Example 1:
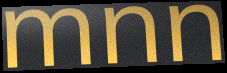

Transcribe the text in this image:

mnn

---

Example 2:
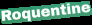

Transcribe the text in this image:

Roquentine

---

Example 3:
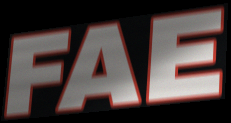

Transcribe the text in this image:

FAE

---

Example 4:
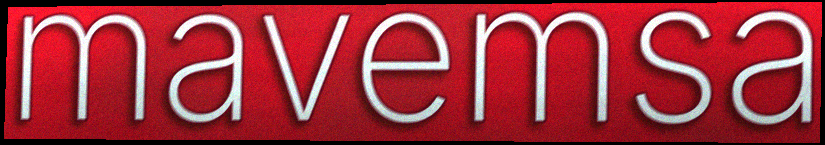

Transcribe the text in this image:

mavemsa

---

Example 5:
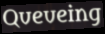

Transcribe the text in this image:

Queueing